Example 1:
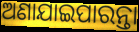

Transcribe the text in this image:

ଅଣାଯାଇପାରନ୍ତା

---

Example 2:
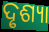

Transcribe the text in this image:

ଦୃଶ୍ୟା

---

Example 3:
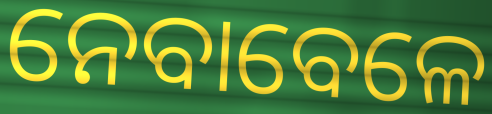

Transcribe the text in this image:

ନେବାବେଳେ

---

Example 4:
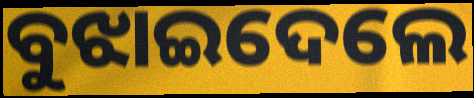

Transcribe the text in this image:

ବୁଝାଇଦେଲେ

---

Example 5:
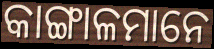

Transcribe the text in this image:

କାଙ୍ଗାଳମାନେ